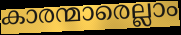
കാരന്മാരെല്ലാം